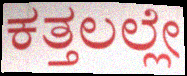
ಕತ್ತಲಲ್ಲೇ